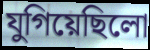
যুগিয়েছিলো